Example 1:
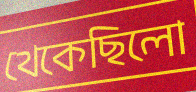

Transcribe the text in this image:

থেকেছিলো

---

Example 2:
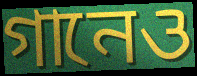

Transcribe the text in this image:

গানেও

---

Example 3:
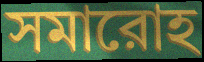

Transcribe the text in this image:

সমারোহ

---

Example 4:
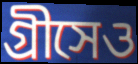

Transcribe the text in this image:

গ্রীসেও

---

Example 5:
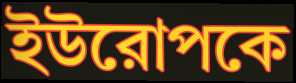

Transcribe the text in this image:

ইউরোপকে